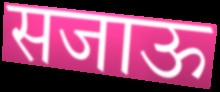
सजाऊ